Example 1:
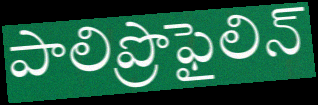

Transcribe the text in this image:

పాలిప్రొఫైలిన్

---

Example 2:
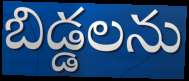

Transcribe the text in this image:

బిడ్డలను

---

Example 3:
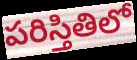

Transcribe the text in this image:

పరిస్తితిలో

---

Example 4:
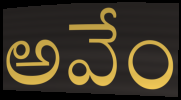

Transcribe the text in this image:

అవేం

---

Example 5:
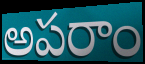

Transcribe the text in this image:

అపరాం